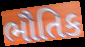
ભૌતિક